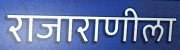
राजाराणीला